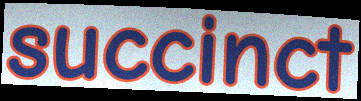
succinct